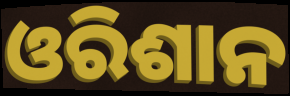
ଓରିଶାନ